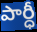
పార్ధీ